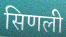
सिणली